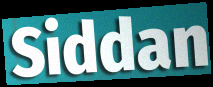
Siddan